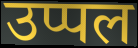
उप्पल